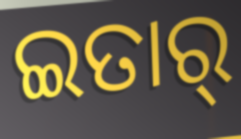
ଇତାର୍